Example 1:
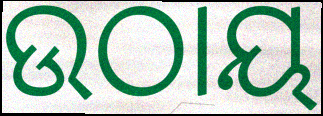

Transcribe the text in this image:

ଉଠାୟ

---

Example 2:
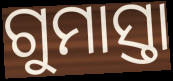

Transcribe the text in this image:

ଗୁମାସ୍ତା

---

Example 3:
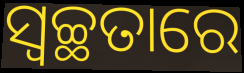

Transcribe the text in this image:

ସ୍ବଚ୍ଛତାରେ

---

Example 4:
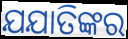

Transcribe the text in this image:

ଯଯାତିଙ୍କର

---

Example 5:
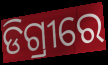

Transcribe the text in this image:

ଡିଗ୍ରୀରେ